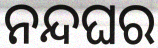
ନନ୍ଦଘର